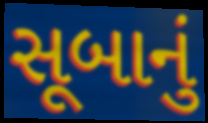
સૂબાનું